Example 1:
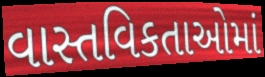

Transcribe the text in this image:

વાસ્તવિકતાઓમાં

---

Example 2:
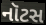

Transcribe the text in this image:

નૉટસ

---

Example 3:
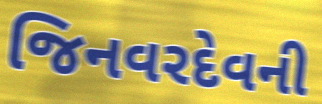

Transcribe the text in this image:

જિનવરદેવની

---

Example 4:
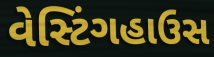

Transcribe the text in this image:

વેસ્ટિંગહાઉસ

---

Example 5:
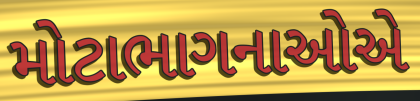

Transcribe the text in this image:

મોટાભાગનાઓએ